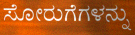
ಸೋರುಗೆಗಳನ್ನು